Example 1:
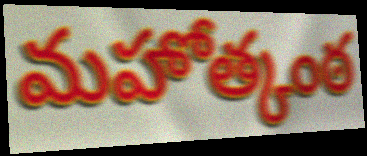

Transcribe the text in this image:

మహోత్కంఠ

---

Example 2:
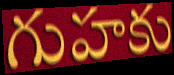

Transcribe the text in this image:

గుహకు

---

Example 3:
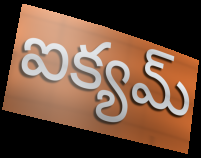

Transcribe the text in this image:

ఐక్యమ్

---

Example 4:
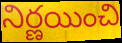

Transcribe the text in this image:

నిర్ణయించి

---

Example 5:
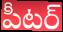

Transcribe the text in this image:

పీటర్